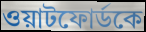
ওয়াটফোর্ডকে